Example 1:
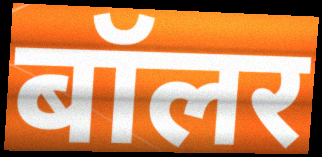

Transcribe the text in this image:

बॉलर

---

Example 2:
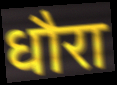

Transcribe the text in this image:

धौरा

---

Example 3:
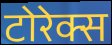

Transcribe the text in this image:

टोरेक्स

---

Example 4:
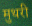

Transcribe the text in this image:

मुथरी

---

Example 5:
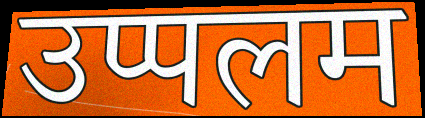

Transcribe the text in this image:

उप्पलम